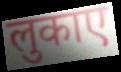
लुकाए